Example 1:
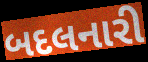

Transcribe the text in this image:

બદલનારી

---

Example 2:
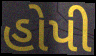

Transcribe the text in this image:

હોપી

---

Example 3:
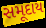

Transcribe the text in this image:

સમૂદાય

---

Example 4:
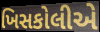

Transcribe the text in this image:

ખિસકોલીએ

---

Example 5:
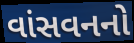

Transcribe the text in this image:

વાંસવનનો